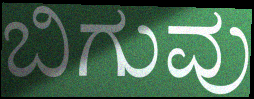
ಬಿಗುವು